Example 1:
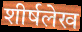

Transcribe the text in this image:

शीर्षलेख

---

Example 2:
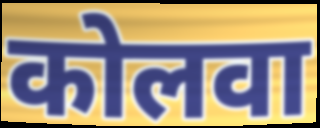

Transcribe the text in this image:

कोलवा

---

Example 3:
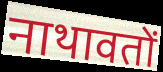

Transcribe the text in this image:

नाथावतों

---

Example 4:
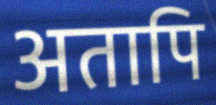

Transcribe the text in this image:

अतापि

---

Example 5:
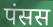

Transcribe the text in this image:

पंसस